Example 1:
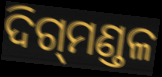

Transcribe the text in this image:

ଦିଗ୍‌ମଣ୍ଡଳ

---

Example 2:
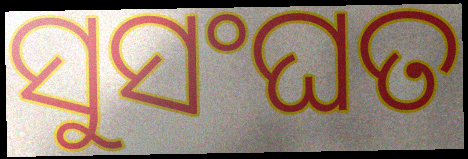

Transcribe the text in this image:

ସୁସଂଘତ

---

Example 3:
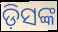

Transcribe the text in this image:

ଡ଼ିସଙ୍କ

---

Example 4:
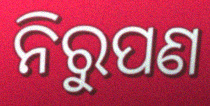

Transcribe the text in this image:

ନିରୁପଣ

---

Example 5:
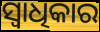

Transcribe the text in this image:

ସ୍ଵାଧିକାର